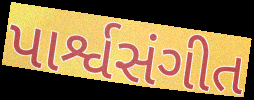
પાર્શ્વસંગીત